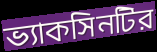
ভ্যাকসিনটির